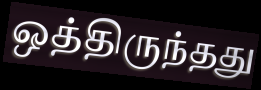
ஒத்திருந்தது